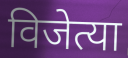
विजेत्या